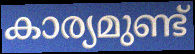
കാര്യമുണ്ട്